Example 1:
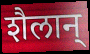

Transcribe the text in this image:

शैलान्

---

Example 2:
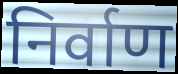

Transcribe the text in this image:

निर्वाण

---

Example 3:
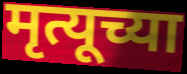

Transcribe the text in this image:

मृत्यूच्या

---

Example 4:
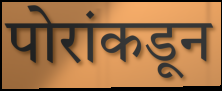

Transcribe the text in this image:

पोरांकडून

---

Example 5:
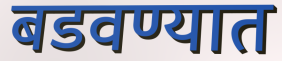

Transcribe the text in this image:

बडवण्यात